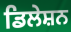
ਡਿਲੇਸ਼ਨ